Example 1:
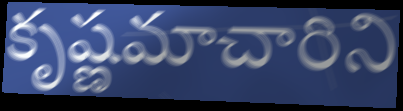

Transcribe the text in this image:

కృష్ణమాచారిని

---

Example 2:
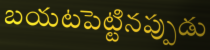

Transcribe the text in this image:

బయటపెట్టినప్పుడు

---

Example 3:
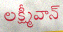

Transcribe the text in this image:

లక్ష్మీవాన్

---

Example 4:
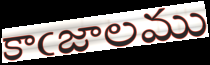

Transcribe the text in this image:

కాఁజాలము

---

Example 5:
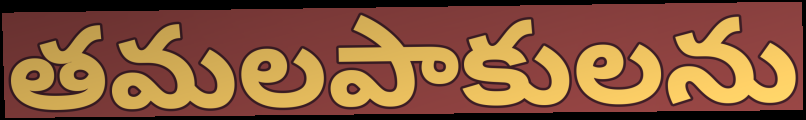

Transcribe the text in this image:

తమలపాకులను